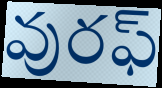
వురఫ్